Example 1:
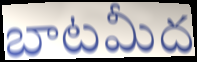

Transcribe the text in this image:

బాటమీద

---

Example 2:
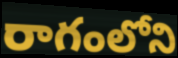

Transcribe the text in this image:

రాగంలోని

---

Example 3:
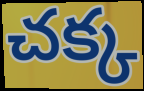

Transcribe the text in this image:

చక్క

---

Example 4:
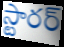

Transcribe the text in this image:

స్టారర్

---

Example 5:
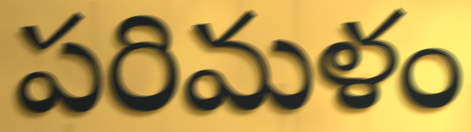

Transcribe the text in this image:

పరిమళం